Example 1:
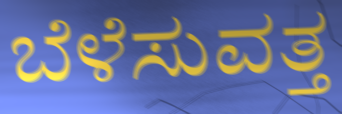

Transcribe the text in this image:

ಬೆಳೆಸುವತ್ತ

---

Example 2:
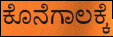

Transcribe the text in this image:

ಕೊನೆಗಾಲಕ್ಕೆ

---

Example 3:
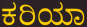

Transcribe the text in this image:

ಕರಿಯಾ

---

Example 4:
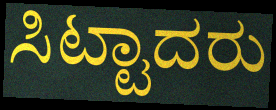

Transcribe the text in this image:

ಸಿಟ್ಟಾದರು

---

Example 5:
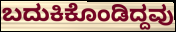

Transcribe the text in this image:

ಬದುಕಿಕೊಂಡಿದ್ದವು